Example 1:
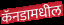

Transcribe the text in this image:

कॅनडामधील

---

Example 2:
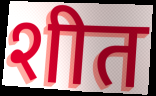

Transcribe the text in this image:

शीत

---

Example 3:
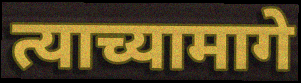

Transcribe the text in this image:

त्याच्यामागे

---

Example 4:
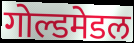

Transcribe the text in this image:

गोल्डमेडल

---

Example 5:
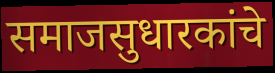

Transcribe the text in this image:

समाजसुधारकांचे